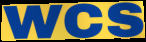
wcs